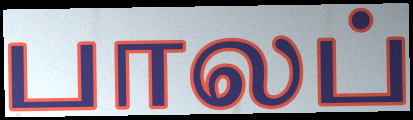
பாலப்